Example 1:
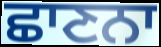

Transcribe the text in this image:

ਛਾਣਨਾ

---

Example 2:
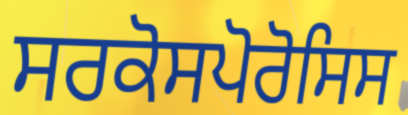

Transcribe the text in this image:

ਸਰਕੋਸਪੋਰੋਸਿਸ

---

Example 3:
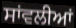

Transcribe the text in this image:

ਸਾਂਵਲੀਆਂ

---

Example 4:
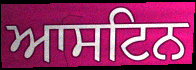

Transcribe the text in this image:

ਆਸਟਿਨ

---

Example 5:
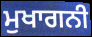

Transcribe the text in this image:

ਮੁਖਾਗਨੀ